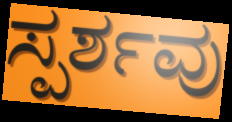
ಸ್ಪರ್ಶವು